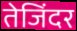
तेजिंदर